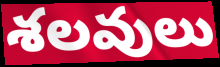
శలవులు